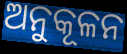
ଅନୁକୂଳନ